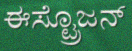
ಈಸ್ಟ್ರೊಜನ್